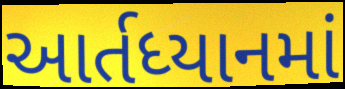
આર્તધ્યાનમાં